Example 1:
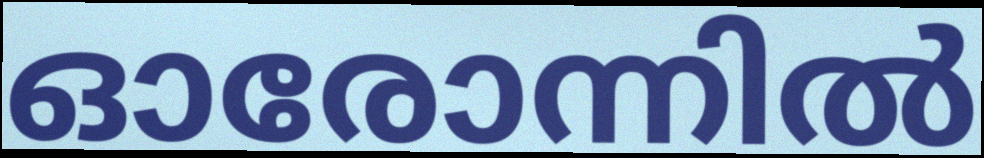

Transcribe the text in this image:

ഓരോന്നിൽ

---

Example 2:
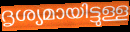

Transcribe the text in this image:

ദൃശ്യമായിട്ടുള്ള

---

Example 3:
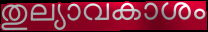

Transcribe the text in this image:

തുല്യാവകാശം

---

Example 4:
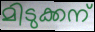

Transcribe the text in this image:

മിടുക്കന്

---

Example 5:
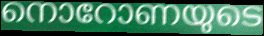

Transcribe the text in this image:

നൊറോണയുടെ